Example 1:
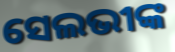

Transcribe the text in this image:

ସେଲଭୀଙ୍କ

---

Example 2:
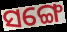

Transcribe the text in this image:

ସଙ୍ଗେ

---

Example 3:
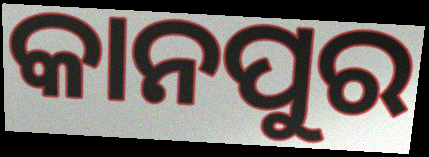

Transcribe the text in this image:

କାନପୁର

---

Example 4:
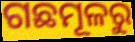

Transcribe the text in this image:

ଗଛମୂଳରୁ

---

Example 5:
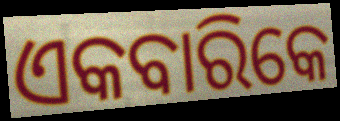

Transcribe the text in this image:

ଏକବାରିକେ